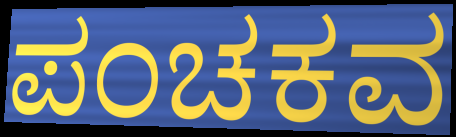
ಪಂಚಕವ